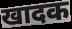
खादक